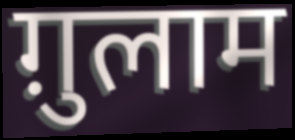
ग़ुलाम